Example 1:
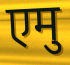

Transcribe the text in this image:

एमु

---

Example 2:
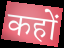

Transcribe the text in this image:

कहों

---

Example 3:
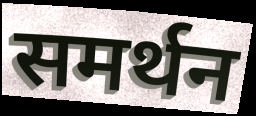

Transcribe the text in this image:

समर्थन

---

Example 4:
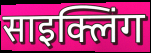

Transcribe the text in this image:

साइक्लिंग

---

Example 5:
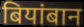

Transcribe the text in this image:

बियांबान